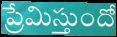
ప్రేమిస్తుందో